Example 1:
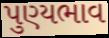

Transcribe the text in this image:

પુણ્યભાવ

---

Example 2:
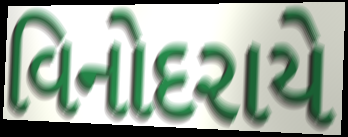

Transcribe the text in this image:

વિનોદરાયે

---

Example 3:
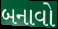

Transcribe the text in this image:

બનાવો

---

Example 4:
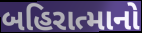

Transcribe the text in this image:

બહિરાત્માનો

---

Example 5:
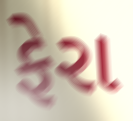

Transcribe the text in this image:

ફેરા